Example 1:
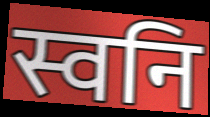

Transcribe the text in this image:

स्वनि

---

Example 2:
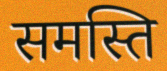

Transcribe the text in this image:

समस्ति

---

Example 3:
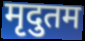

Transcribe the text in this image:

मृदुतम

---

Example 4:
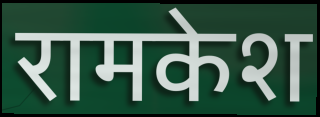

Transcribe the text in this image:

रामकेश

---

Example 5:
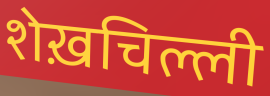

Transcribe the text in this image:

शेख़चिल्ली